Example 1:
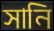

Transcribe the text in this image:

সানি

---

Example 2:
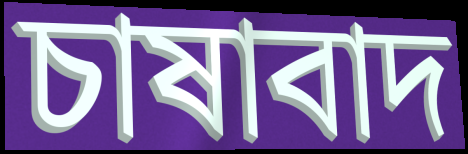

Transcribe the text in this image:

চাষাবাদ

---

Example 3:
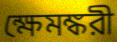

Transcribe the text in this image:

ক্ষেমঙ্করী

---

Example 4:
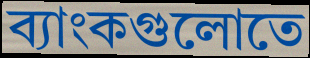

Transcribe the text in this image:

ব্যাংকগুলোতে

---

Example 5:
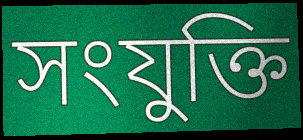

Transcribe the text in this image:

সংযুক্তি